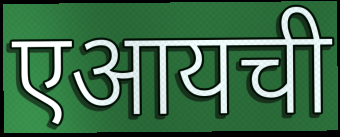
एआयची